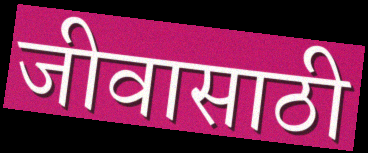
जीवासाठी